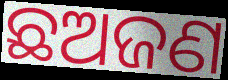
ଛଅଜଣ